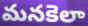
మనకెలా